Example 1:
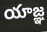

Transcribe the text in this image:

యాజ్ఞ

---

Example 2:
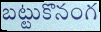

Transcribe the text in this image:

బట్టుకొనంగ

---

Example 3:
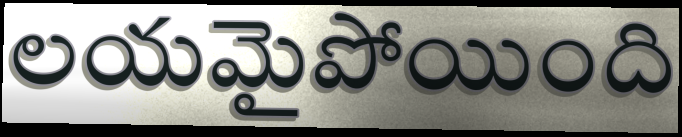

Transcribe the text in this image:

లయమైపోయింది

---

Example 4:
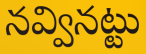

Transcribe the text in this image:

నవ్వినట్టు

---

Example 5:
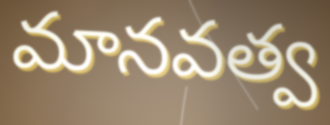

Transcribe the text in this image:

మానవత్వ